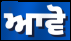
ਆਵੋ